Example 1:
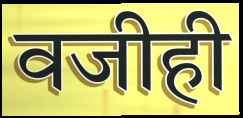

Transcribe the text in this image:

वजीही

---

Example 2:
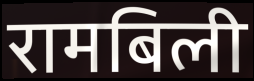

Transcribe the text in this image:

रामबिली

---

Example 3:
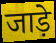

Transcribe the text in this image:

जाड़े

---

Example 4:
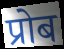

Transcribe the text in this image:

प्रोब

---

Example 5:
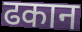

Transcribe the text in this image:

ढकान